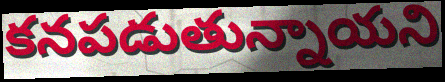
కనపడుతున్నాయని